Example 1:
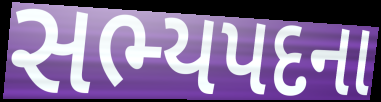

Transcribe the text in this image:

સભ્યપદના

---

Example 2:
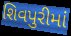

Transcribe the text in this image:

શિવપુરીમાં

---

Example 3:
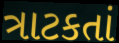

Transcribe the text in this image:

ત્રાટકતાં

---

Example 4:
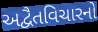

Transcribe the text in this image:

અદ્વૈતવિચારનો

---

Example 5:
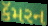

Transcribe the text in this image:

કૅમરન